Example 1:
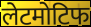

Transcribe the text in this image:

लेटमोटिफ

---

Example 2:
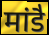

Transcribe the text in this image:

मांडै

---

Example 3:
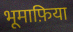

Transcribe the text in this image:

भूमाफ़िया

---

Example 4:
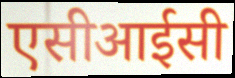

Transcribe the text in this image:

एसीआईसी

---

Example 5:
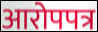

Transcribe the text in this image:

आरोपपत्र